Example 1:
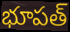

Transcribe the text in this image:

భూపత్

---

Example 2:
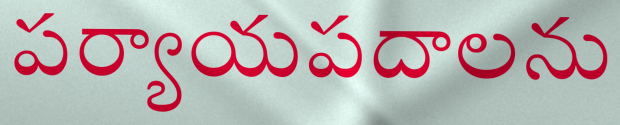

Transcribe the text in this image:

పర్యాయపదాలను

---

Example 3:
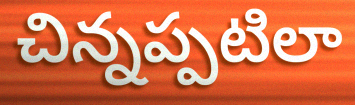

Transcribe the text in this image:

చిన్నప్పటిలా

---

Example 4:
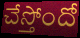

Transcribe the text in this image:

చేస్తోందో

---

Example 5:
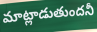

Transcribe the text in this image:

మాట్లాడుతుందనీ